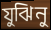
যুঝিনু